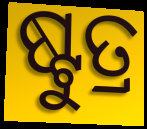
ଷ୍ଟୁତ୍ର